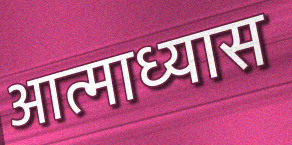
आत्माध्यास